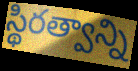
స్థిరత్వాన్ని